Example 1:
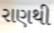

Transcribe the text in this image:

રાણથી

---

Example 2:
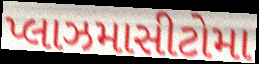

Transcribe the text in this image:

પ્લાઝમાસીટોમા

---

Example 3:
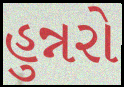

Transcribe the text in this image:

હુન્નરો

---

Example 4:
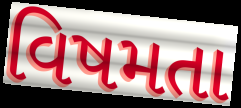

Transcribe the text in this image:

વિષમતા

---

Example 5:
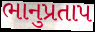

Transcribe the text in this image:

ભાનુપ્રતાપ